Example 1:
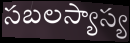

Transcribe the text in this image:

సబలస్యాస్య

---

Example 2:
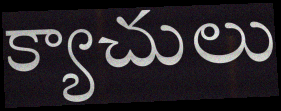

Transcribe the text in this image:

క్యాచులు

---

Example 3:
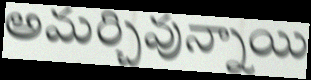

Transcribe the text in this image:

అమర్చివున్నాయి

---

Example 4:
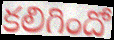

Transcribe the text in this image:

కలిగిందో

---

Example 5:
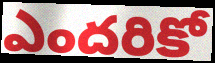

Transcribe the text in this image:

ఎందరికో